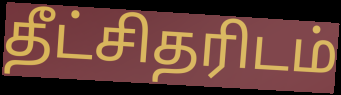
தீட்சிதரிடம்